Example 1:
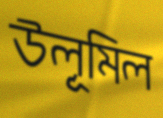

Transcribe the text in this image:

উলূমিল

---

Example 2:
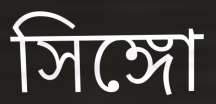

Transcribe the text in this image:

সিঙ্গো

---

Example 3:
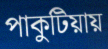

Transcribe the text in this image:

পাকুটিয়ায়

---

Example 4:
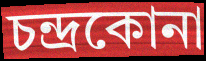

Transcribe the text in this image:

চন্দ্রকোনা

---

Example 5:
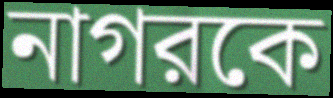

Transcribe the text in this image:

নাগরকে